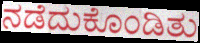
ನಡೆದುಕೊಂಡಿತು